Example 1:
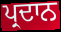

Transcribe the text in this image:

ਪ੍ਰਦਾਨ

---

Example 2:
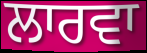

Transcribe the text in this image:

ਲਾਰਵਾ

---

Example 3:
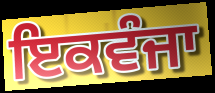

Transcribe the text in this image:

ਇਕਵੰਜਾ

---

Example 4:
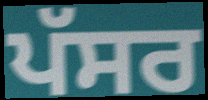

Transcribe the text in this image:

ਪੱਸਰ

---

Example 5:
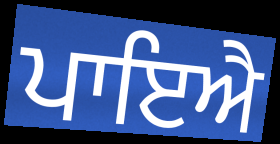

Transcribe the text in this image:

ਪਾਇਐ